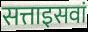
सत्ताइसवां